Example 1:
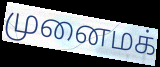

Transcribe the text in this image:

முனைமக்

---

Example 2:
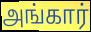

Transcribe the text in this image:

அங்கார்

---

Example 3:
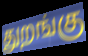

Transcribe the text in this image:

துறங்கு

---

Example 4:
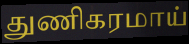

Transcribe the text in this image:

துணிகரமாய்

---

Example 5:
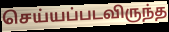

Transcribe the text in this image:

செய்யப்படவிருந்த